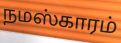
நமஸ்காரம்